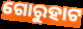
ଗୋରୁହାଟ